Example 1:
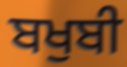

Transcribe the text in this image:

ਬਖੁਬੀ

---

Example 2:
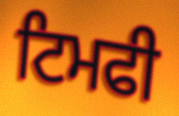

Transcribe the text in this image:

ਟਿਮਫੀ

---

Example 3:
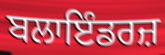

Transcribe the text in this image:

ਬਲਾਇੰਡਰਜ਼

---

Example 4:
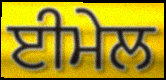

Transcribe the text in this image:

ਈਮੇਲ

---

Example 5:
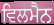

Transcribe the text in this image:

ਵਿਲਮੈਨ